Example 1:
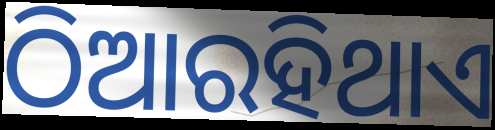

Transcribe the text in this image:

ଠିଆରହିଥାଏ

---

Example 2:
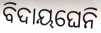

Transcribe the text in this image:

ବିଦାୟଘେନି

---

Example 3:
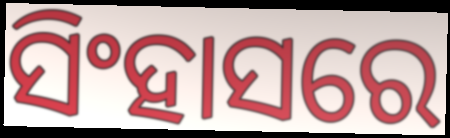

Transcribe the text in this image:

ସିଂହାସରେ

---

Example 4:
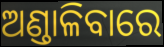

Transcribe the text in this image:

ଅଣ୍ଡାଳିବାରେ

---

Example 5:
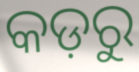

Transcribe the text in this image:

କଡ଼ରୁ